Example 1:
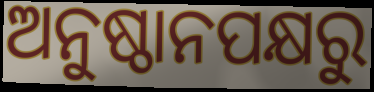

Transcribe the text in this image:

ଅନୁଷ୍ଠାନପକ୍ଷରୁ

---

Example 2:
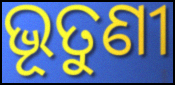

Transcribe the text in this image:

ଭୂତୁଣୀ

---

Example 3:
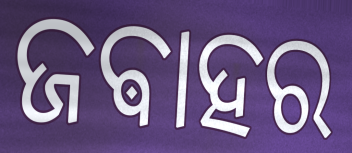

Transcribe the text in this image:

ଜଵାହର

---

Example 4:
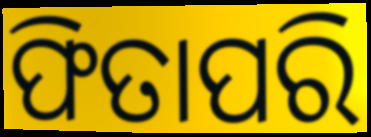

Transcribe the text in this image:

ଫିତାପରି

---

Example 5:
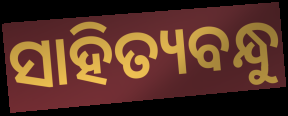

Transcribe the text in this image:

ସାହିତ୍ୟବନ୍ଧୁ